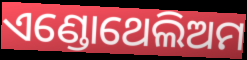
ଏଣ୍ଡୋଥେଲିଅମ